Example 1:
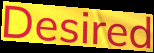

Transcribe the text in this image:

Desired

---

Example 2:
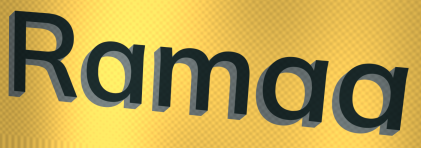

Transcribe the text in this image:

Ramaa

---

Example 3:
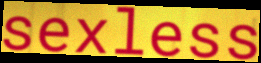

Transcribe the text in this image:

sexless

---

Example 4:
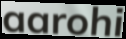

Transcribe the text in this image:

aarohi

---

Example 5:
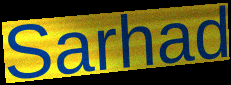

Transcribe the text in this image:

Sarhad